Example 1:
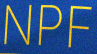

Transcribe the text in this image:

NPF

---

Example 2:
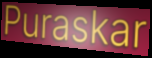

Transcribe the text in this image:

Puraskar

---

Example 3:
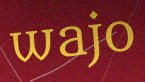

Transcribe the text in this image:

wajo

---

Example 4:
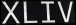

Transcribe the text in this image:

XLIV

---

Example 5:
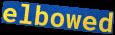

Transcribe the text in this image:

elbowed